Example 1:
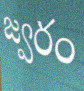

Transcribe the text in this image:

జ్వరం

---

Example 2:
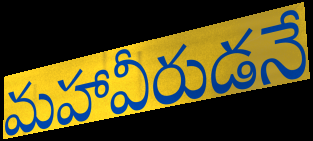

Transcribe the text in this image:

మహావీరుడనే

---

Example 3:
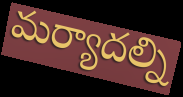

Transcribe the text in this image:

మర్యాదల్ని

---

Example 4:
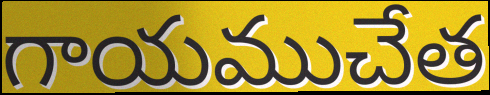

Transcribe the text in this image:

గాయముచేత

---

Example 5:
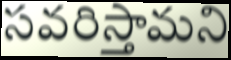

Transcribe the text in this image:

సవరిస్తామని